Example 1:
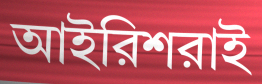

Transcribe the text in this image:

আইরিশরাই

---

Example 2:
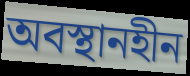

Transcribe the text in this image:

অবস্থানহীন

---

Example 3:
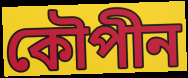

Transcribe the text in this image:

কৌপীন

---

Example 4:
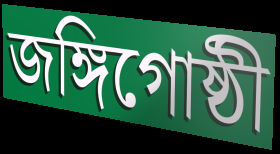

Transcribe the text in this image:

জঙ্গিগোষ্ঠী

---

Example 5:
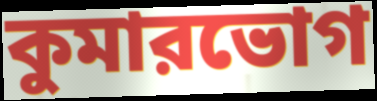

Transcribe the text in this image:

কুমারভোগ